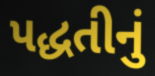
પદ્ધતીનું